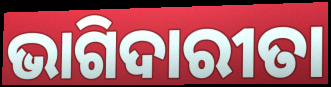
ଭାଗିଦାରୀତା